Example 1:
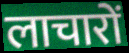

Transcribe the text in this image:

लाचारों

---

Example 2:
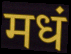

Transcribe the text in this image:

मधं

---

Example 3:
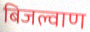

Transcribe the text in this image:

बिजल्वाण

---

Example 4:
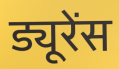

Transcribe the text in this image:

ड्यूरेंस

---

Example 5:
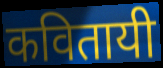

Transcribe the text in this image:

कवितायी